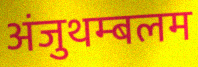
अंजुथम्बलम